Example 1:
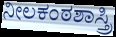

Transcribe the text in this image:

ನೀಲಕಂಠಶಾಸ್ತ್ರಿ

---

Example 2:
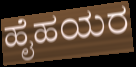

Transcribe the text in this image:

ಹೈಹಯರ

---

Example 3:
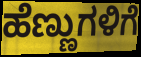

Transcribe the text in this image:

ಹೆಣ್ಣುಗಳಿಗೆ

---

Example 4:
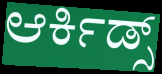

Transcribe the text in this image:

ಆರ್ಕಿಡ್ಸ್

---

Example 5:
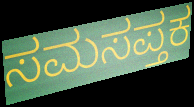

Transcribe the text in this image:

ಸಮಸಪ್ತಕ